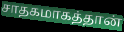
சாதகமாகத்தான்